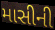
માસીની